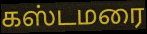
கஸ்டமரை